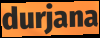
durjana